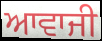
ਆਵਾਜੀ